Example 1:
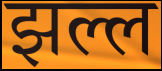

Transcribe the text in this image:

झल्ल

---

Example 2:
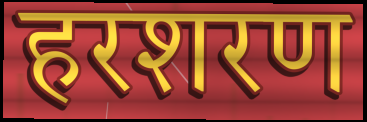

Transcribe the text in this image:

हरशरण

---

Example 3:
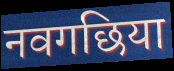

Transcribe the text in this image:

नवगछिया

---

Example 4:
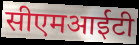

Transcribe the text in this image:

सीएमआईटी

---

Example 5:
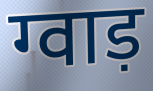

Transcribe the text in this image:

ग्वाड़